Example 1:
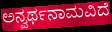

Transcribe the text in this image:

ಅನ್ವರ್ಥನಾಮವಿದೆ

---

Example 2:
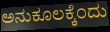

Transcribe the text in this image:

ಅನುಕೂಲಕ್ಕೆಂದು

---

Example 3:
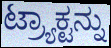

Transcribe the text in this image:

ಟ್ರ್ಯಾಕ್ಟನ್ನು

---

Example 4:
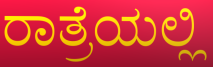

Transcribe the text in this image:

ರಾತ್ರೆಯಲ್ಲಿ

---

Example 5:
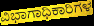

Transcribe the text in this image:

ವಿಭಾಗಾಧಿಕಾರಿಗಳ